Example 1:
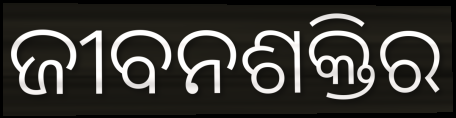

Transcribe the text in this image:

ଜୀବନଶକ୍ତିର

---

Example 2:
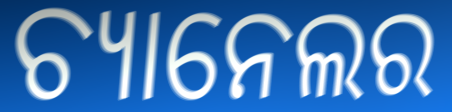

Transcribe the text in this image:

ଚ୍ୟାନେଲର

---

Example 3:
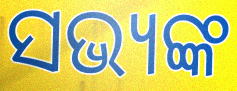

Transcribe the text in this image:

ସଭ୍ୟଙ୍କ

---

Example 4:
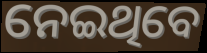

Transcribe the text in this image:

ନେଇଥିବେ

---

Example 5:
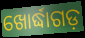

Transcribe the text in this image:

ଖୋର୍ଦ୍ଧାଗଡ଼